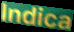
Indica